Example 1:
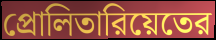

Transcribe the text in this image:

প্রোলিতারিয়েতের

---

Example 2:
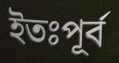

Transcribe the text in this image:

ইতঃপূর্ব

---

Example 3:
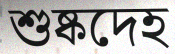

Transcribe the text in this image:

শুষ্কদেহ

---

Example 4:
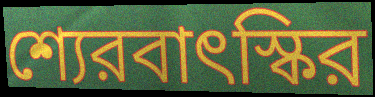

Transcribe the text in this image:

শ্যেরবাৎস্কির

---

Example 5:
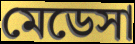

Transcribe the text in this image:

মেডেসা